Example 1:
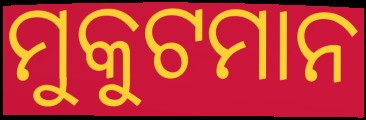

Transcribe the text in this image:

ମୁକୁଟମାନ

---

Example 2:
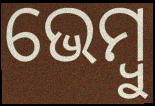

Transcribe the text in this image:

ଭେମ୍ବୁ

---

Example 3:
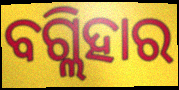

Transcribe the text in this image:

ବଗ୍ଲିହାର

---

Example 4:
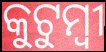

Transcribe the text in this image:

କୁଟୁମ୍ବୀ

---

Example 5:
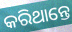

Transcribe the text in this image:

କରିଥାନ୍ତେ